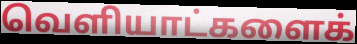
வெளியாட்களைக்